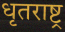
धृतराष्ट्र